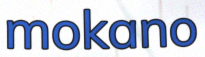
mokano